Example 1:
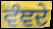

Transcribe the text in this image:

ਵੰਞਦੇ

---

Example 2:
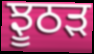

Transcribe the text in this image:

ਝੂਠੜ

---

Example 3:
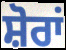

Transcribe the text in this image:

ਸ਼ੋਰਾਂ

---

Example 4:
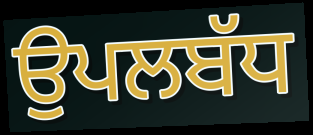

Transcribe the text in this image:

ਉਪਲਬੱਧ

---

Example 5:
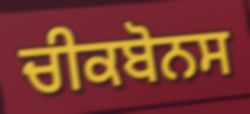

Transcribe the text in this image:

ਚੀਕਬੋਨਸ